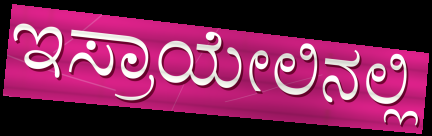
ಇಸ್ರಾಯೇಲಿನಲ್ಲಿ